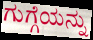
ಗುಗ್ಗೆಯನ್ನು